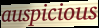
auspicious